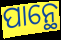
ପାନ୍ଥେ